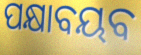
ପକ୍ଷାବୟବ